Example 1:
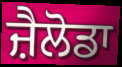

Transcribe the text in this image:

ਜ਼ੈਲੋਡਾ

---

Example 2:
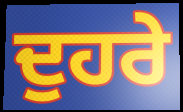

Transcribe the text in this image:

ਦੁਹਰੇ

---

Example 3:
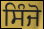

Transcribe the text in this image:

ਸਿੰਜੋ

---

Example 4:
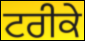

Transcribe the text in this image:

ਟਰੀਕੇ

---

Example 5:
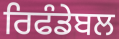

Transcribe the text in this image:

ਰਿਫੰਡੇਬਲ